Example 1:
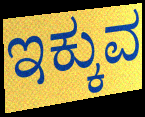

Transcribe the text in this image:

ಇಕ್ಕುವ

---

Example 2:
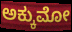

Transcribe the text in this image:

ಅಕ್ಕುಮೋ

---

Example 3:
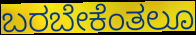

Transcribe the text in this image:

ಬರಬೇಕೆಂತಲೂ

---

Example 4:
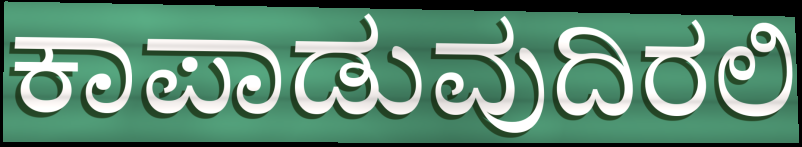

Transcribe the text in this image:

ಕಾಪಾಡುವುದಿರಲಿ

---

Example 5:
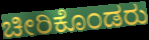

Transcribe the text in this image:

ಚೀರಿಕೊಂಡರು